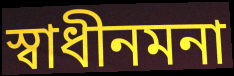
স্বাধীনমনা